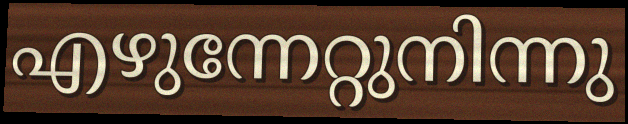
എഴുന്നേറ്റുനിന്നു